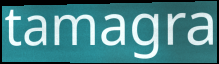
tamagra